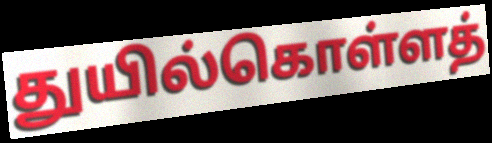
துயில்கொள்ளத்